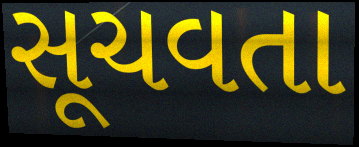
સૂચવતા